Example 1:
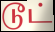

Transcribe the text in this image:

டூட்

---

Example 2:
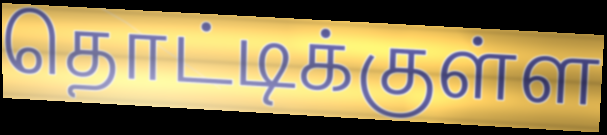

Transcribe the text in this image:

தொட்டிக்குள்ள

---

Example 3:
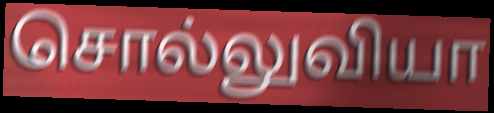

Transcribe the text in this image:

சொல்லுவியா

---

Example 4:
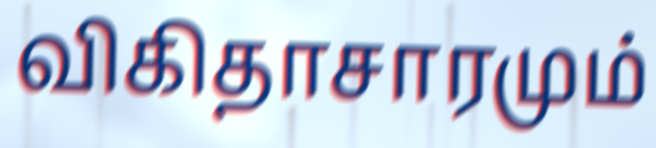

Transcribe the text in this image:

விகிதாசாரமும்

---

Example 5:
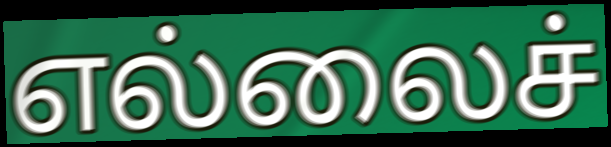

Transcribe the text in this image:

எல்லைச்